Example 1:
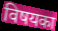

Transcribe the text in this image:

विषयका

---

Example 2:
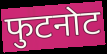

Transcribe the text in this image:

फुटनोट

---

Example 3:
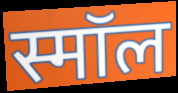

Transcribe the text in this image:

स्मॉल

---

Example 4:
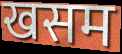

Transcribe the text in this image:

खसम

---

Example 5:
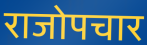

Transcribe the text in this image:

राजोपचार